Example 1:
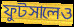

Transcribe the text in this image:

ফুটসালেও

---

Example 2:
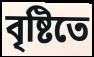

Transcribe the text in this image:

বৃষ্টিতে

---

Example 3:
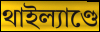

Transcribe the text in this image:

থাইল্যাণ্ডে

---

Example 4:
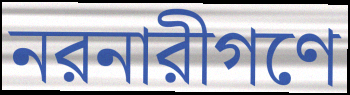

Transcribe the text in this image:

নরনারীগণে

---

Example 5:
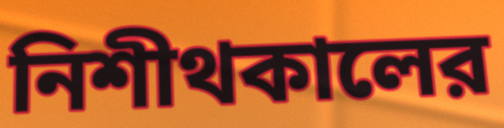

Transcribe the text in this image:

নিশীথকালের